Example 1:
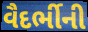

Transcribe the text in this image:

વૈદર્ભીની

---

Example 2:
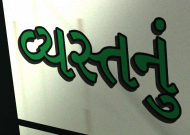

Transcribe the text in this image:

વ્યસ્તનું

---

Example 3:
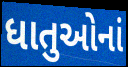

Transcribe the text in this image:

ધાતુઓનાં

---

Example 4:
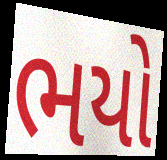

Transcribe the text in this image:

ભયો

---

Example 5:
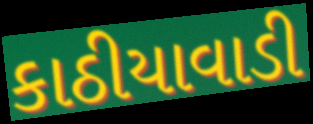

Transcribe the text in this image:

કાઠીયાવાડી